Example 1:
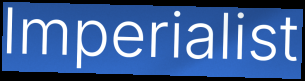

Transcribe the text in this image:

Imperialist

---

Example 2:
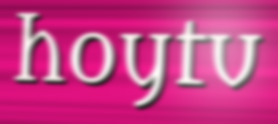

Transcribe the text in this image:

hoytu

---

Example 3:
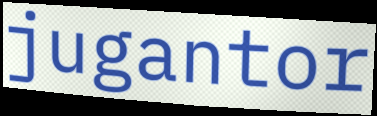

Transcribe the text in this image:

jugantor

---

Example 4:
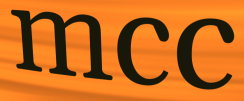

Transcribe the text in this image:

mcc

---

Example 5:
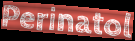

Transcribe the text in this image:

Perinatol